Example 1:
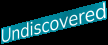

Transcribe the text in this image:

Undiscovered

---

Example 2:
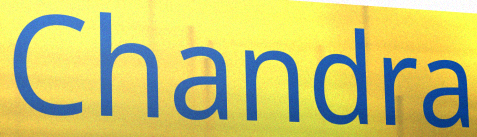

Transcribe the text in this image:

Chandra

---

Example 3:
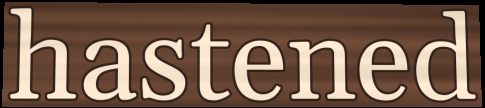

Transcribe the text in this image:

hastened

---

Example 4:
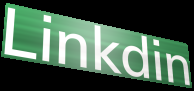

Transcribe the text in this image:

Linkdin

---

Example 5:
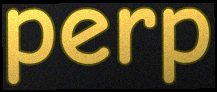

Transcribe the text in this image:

perp